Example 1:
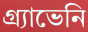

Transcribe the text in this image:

গ্র্যাভেনি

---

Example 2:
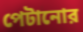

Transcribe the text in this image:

পেটানোর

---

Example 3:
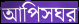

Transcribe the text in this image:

আপিসঘর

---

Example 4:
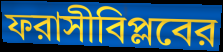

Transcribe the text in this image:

ফরাসীবিপ্লবের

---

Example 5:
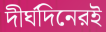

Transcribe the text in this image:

দীর্ঘদিনেরই